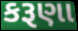
કરૂણા